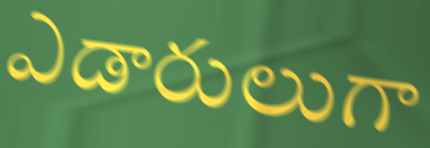
ఎడారులుగా